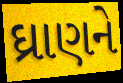
ઘ્રાણને